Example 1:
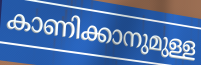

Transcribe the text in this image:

കാണിക്കാനുമുള്ള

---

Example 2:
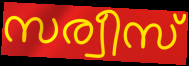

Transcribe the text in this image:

സര്വീസ്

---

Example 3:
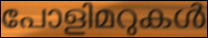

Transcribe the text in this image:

പോളിമറുകൾ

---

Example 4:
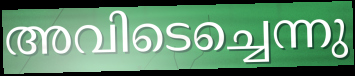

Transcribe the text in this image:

അവിടെച്ചെന്നു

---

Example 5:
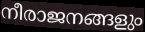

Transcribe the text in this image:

നീരാജനങ്ങളും